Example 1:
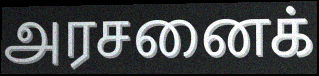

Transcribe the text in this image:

அரசனைக்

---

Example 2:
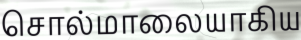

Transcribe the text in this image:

சொல்மாலையாகிய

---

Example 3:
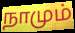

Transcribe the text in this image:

நாமும்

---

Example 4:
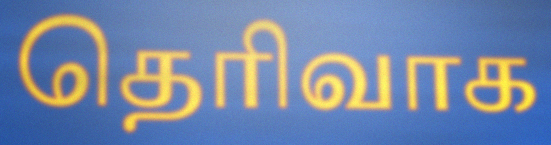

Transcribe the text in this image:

தெரிவாக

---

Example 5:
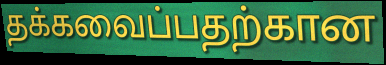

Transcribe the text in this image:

தக்கவைப்பதற்கான